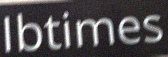
Ibtimes